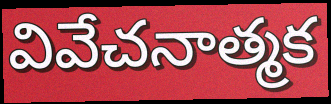
వివేచనాత్మక